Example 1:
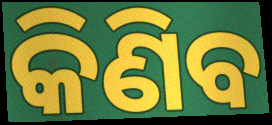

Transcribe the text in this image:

କିଣିବ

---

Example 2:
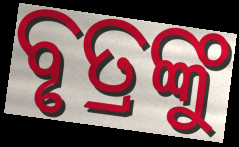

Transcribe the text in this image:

ବୃତ୍ରଙ୍କୁ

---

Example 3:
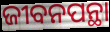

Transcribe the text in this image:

ଜୀବନପନ୍ଥା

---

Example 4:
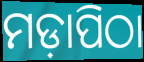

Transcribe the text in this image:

ମଡ଼ାପିଠା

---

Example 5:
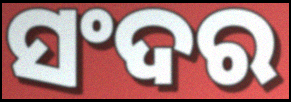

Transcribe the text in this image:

ସଂଦର